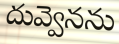
దువ్వెనను